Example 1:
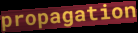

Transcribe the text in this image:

propagation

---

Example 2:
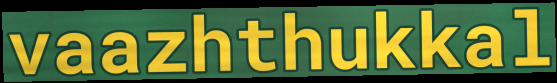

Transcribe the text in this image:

vaazhthukkal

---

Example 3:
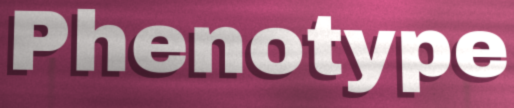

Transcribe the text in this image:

Phenotype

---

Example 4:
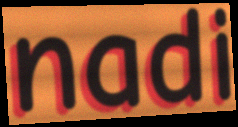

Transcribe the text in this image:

nadi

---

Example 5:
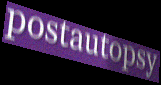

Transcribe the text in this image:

postautopsy